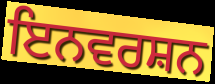
ਇਨਵਰਸ਼ਨ